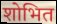
शोभित